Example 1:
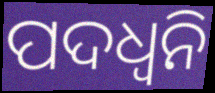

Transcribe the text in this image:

ପଦଧ୍ୱନି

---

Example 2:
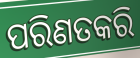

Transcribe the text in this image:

ପରିଣତକରି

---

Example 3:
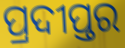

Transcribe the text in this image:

ପ୍ରଦୀପ୍ତର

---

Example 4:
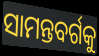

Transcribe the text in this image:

ସାମନ୍ତବର୍ଗକୁ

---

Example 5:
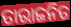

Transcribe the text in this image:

ତାରାଜନିତ